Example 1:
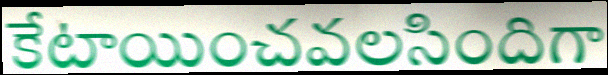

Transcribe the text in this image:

కేటాయించవలసిందిగా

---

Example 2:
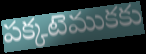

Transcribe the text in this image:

పక్కటెముకకు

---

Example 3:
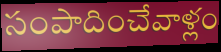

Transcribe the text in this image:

సంపాదించేవాళ్లం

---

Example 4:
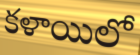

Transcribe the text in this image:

కళాయిలో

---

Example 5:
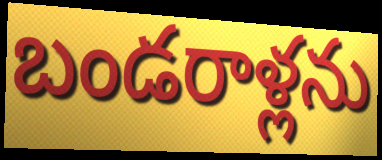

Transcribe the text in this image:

బండరాళ్లను